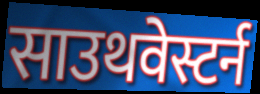
साउथवेस्टर्न